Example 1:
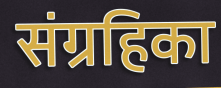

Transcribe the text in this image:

संग्रहिका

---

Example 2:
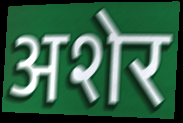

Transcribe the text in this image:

अशेर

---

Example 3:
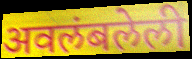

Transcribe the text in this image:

अवलंबलेली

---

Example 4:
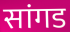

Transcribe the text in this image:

सांगड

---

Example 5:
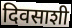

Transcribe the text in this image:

दिवसाशी